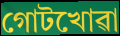
গোটখোৱা